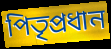
পিতৃপ্রধান